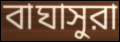
বাঘাসুরা